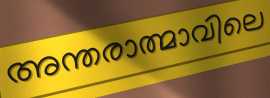
അന്തരാത്മാവിലെ